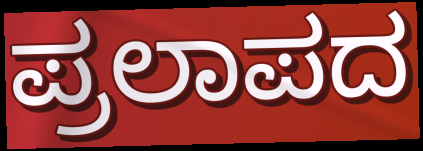
ಪ್ರಲಾಪದ